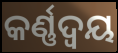
କର୍ଣ୍ଣଦ୍ୱୟ